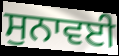
ਸੁਨਾਵਈ